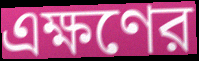
এক্ষণের